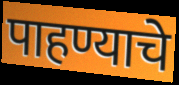
पाहण्याचे